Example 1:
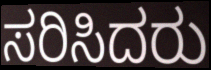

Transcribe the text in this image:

ಸರಿಸಿದರು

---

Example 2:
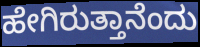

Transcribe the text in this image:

ಹೇಗಿರುತ್ತಾನೆಂದು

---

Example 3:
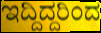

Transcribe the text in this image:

ಇದ್ದಿದ್ದರಿಂದ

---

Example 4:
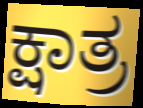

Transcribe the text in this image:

ಕ್ಷಾತ್ರ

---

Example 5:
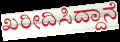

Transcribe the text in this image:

ಖರೀದಿಸಿದ್ದಾನೆ